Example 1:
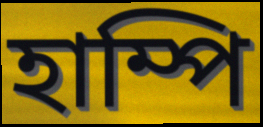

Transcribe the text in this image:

হাম্পি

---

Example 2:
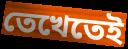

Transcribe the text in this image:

তেখেতেই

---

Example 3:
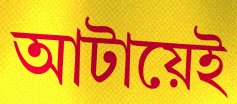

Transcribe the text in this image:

আটায়েই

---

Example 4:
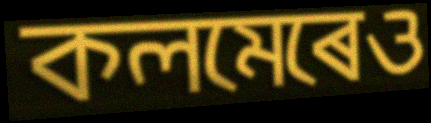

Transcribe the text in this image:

কলমেৰেও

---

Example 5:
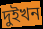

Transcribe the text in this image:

দুইখন